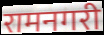
रामनगरी